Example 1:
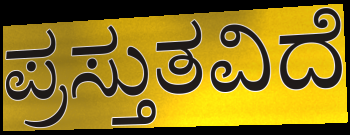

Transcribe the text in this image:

ಪ್ರಸ್ತುತವಿದೆ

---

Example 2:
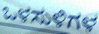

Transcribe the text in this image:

ಒಳಸುಳಿಗಳ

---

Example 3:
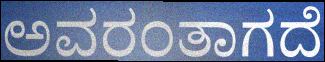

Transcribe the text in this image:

ಅವರಂತಾಗದೆ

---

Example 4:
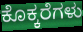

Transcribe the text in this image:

ಕೊಕ್ಕರೆಗಳು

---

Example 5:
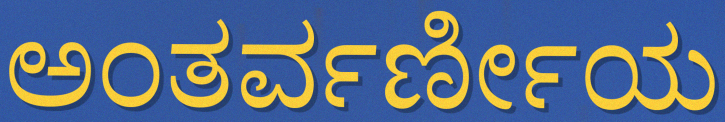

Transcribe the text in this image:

ಅಂತರ್ವರ್ಣೀಯ